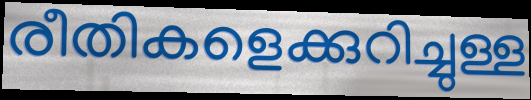
രീതികളെക്കുറിച്ചുള്ള